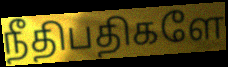
நீதிபதிகளே